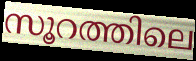
സൂറത്തിലെ